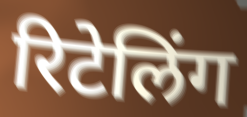
रिटेलिंग